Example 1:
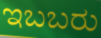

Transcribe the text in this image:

ಇಬಬರು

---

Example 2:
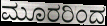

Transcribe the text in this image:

ಮೂರರಿಂದ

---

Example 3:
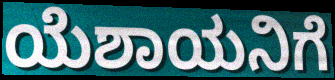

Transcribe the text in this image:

ಯೆಶಾಯನಿಗೆ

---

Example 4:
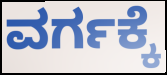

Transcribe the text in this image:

ವರ್ಗಕ್ಕೆ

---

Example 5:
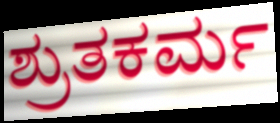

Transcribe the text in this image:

ಶ್ರುತಕರ್ಮ